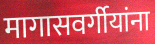
मागासवर्गीयांना